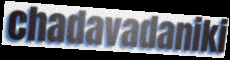
chadavadaniki